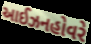
આઈઝનહોવરે